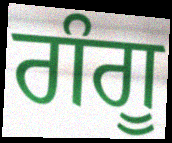
ਗੰਗੂ